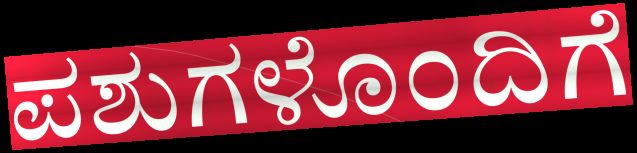
ಪಶುಗಳೊಂದಿಗೆ